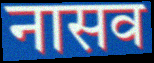
नासव